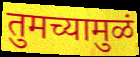
तुमच्यामुळं